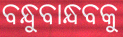
ବନ୍ଧୁବାନ୍ଧବକୁ